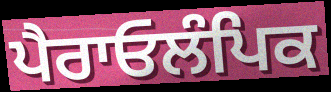
ਪੈਰਾਓਲੰਪਿਕ